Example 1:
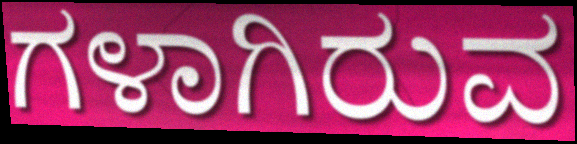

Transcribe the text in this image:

ಗಳಾಗಿರುವ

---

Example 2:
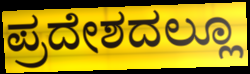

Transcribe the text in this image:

ಪ್ರದೇಶದಲ್ಲೂ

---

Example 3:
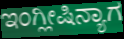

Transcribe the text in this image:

ಇಂಗ್ಲೀಷಿನ್ಯಾಗ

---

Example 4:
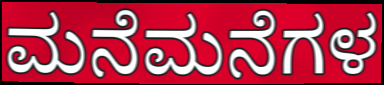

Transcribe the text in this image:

ಮನೆಮನೆಗಳ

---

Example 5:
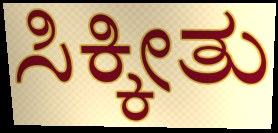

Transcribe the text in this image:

ಸಿಕ್ಕೀತು